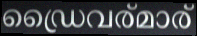
ഡ്രൈവര്മാര്